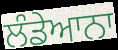
ਲੰਡੇਆਨਾ